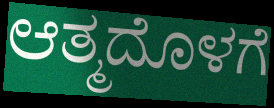
ಆತ್ಮದೊಳಗೆ